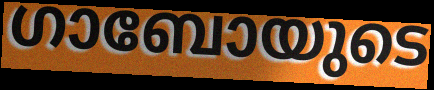
ഗാബോയുടെ